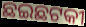
ଛଇଛଟକୀ